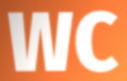
WC